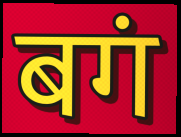
बगं